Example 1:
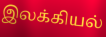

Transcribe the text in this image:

இலக்கியல்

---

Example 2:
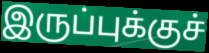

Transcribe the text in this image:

இருப்புக்குச்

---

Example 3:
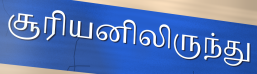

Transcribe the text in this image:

சூரியனிலிருந்து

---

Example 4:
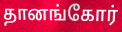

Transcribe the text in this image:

தானங்கோர்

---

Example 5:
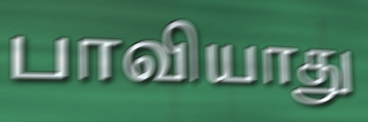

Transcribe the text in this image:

பாவியாது